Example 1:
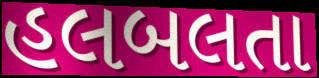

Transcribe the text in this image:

હલબલતા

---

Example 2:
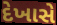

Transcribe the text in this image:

દેખાસે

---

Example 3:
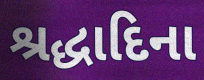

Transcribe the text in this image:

શ્રદ્ધાદિના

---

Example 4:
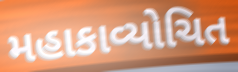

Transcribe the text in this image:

મહાકાવ્યોચિત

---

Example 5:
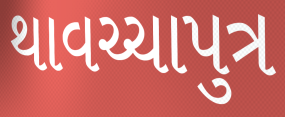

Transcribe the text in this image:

થાવચ્ચાપુત્ર